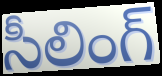
సీలింగ్